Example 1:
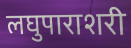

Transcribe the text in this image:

लघुपाराशरी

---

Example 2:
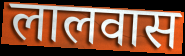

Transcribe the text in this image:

लालवास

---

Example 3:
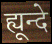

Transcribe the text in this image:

ह्यून्दे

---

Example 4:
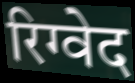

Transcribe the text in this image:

रिग्वेद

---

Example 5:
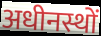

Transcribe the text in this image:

अधीनस्थों